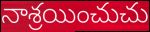
నాశ్రయించుచు